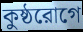
কুষ্ঠরোগে